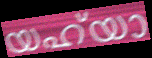
യഹ്‌യാ